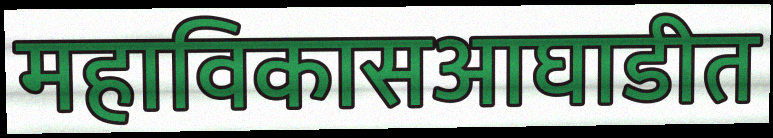
महाविकासआघाडीत